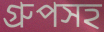
গ্রুপসহ